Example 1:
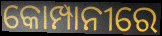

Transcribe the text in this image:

କୋମ୍ପାନୀରେ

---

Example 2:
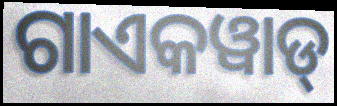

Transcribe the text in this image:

ଗାଏକୱାଡ୍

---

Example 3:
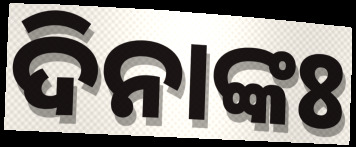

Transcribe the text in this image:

ଦିନାଙ୍କଃ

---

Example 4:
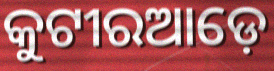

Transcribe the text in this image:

କୁଟୀରଆଡ଼େ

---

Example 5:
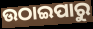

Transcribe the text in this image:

ଉଠାଇପାରୁ